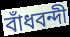
বাঁধবন্দী